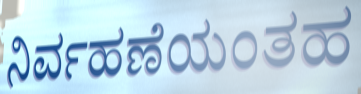
ನಿರ್ವಹಣೆಯಂತಹ